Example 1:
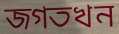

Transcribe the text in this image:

জগতখন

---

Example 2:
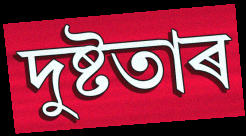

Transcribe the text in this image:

দুষ্টতাৰ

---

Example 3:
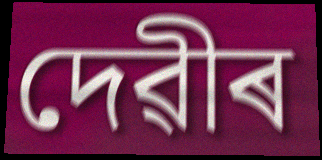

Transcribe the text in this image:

দেৱীৰ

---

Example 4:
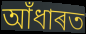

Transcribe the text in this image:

আঁধাৰত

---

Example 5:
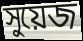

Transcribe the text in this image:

সুয়েজ